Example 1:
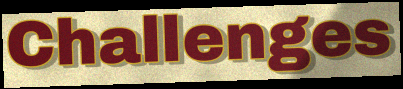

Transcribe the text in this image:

Challenges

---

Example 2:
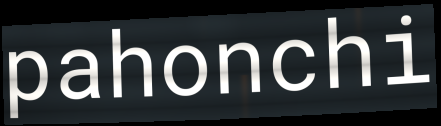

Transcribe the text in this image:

pahonchi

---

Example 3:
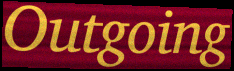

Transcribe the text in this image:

Outgoing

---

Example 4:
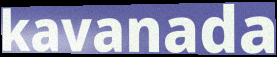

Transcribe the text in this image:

kavanada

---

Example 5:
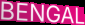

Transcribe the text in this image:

BENGAL